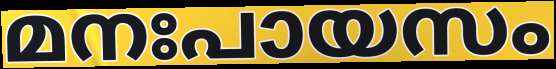
മനഃപായസം